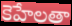
కెహేలతా